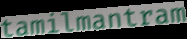
tamilmantram